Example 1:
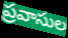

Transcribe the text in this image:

ప్రవాసుల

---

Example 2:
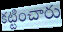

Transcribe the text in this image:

కట్టించారు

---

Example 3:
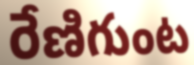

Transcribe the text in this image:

రేణిగుంట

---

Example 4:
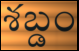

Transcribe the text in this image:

శబ్డం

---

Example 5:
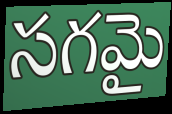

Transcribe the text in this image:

సగమై